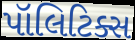
પૉલિટિક્સ